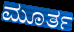
ಮೂರ್ತ